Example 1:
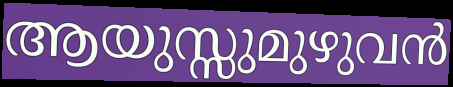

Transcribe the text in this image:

ആയുസ്സുമുഴുവൻ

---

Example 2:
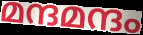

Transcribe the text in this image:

മന്ദമന്ദം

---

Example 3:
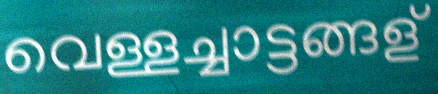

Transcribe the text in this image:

വെള്ളച്ചാട്ടങ്ങള്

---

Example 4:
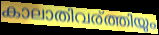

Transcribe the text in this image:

കാലാതിവര്ത്തിയും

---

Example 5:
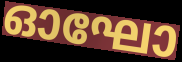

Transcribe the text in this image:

ഓഘോ